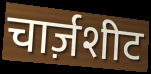
चार्ज़शीट